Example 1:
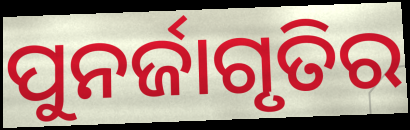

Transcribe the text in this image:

ପୁନର୍ଜାଗୃତିର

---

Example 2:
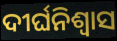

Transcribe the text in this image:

ଦୀର୍ଘନିଶ୍ୱାସ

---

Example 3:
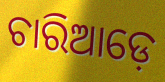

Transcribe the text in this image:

ଚାରିଆଡ଼େ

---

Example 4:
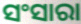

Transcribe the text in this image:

ସଂସାରା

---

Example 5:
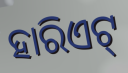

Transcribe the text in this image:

ହାରିଏଟ୍